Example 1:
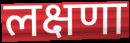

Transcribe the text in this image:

लक्षणा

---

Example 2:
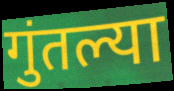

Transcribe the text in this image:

गुंतल्या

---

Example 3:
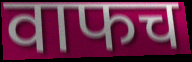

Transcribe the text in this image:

वाफच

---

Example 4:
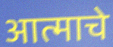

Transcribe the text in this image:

आत्माचे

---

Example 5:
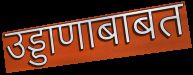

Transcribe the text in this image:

उड्डाणाबाबत